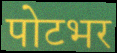
पोटभर